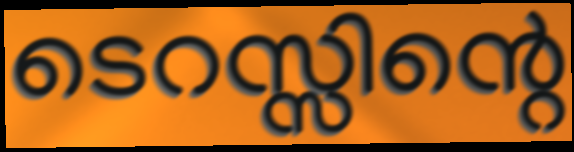
ടെറസ്സിന്റെ